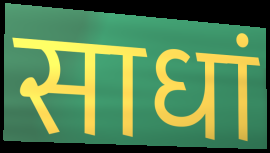
साधां